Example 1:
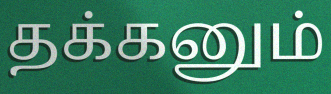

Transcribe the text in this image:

தக்கனும்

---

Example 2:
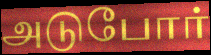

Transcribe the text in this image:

அடுபோர்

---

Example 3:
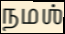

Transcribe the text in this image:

நமஶ்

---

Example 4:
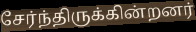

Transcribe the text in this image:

சேர்ந்திருக்கின்றனர்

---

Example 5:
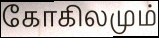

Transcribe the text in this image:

கோகிலமும்